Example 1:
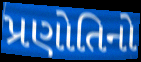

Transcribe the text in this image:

પ્રણોતિનો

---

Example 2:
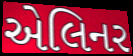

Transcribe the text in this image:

એલિનર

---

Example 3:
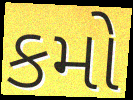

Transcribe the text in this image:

કમો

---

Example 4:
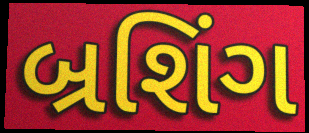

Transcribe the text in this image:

બ્રશિંગ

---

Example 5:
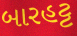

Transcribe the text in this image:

બારહટ્ટ